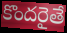
కొందరైతే